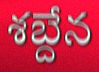
శబ్దేన